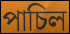
পাচিল